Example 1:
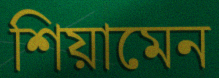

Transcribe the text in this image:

শিয়ামেন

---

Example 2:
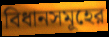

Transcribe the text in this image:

বিধানসমূহের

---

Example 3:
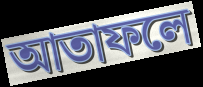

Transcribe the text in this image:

আতাফলে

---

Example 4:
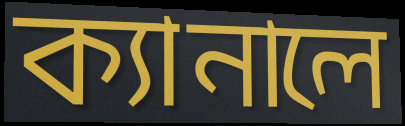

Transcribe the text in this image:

ক্যানালে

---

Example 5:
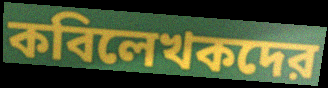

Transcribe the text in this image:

কবিলেখকদের